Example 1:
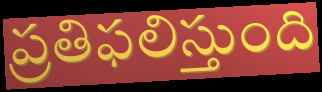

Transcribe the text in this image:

ప్రతిఫలిస్తుంది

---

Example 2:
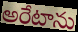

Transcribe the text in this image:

అరేటాను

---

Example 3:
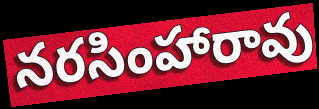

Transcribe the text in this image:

నరసింహారావు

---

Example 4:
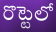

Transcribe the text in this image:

రొట్టెలో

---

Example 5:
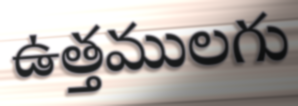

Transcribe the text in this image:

ఉత్తములగు